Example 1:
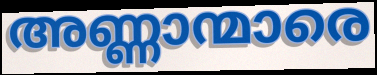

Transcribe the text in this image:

അണ്ണാന്മാരെ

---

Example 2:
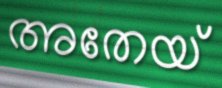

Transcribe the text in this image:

അതേയ്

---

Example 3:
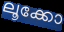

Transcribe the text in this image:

ലൂക്കോ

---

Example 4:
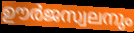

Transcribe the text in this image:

ഊർജസ്വലനും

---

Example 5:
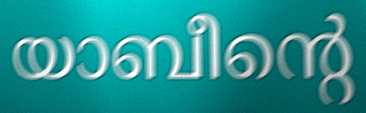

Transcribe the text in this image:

യാബീന്റെ